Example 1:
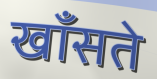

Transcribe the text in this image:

खाँसते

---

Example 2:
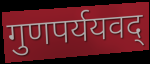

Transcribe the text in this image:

गुणपर्ययवद्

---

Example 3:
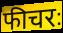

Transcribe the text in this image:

फीचरः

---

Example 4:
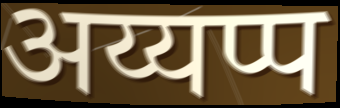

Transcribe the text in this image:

अय्यप्प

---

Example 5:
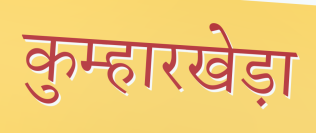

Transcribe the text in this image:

कुम्हारखेड़ा